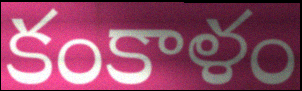
కంకాళం